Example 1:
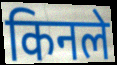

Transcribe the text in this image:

किनले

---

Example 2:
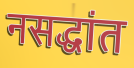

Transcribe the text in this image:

नसद्धांत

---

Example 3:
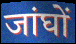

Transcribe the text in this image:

जांघों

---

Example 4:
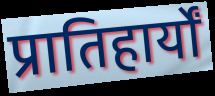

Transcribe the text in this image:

प्रातिहार्यों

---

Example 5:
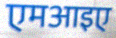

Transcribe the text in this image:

एमआइए